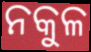
ନକୁଳ